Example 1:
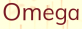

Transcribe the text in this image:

Omega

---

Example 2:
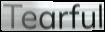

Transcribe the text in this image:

Tearful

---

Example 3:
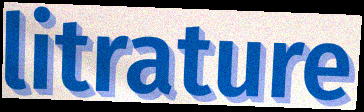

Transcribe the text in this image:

litrature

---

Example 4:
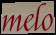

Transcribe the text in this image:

melo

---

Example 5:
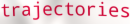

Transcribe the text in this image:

trajectories